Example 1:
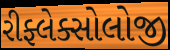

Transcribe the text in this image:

રીફ્લેક્સોલોજી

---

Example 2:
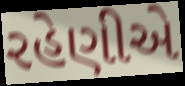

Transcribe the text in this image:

રહેણીએ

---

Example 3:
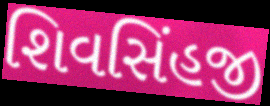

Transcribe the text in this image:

શિવસિંહજી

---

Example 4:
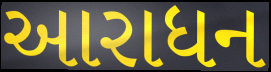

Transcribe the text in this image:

આરાધન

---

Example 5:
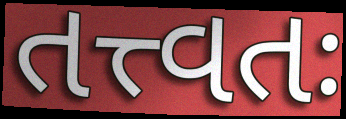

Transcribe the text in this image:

તત્ત્વતઃ